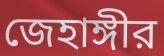
জেহাঙ্গীর